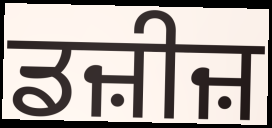
ਡਜ਼ੀਜ਼